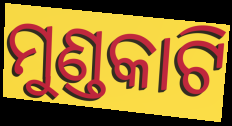
ମୁଣ୍ଡକାଟି